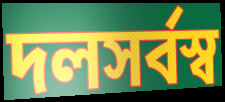
দলসর্বস্ব